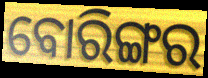
ବୋରିଙ୍ଗର